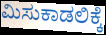
ಮಿಸುಕಾಡಲಿಕ್ಕೆ